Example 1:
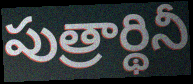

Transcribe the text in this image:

పుత్రార్థినీ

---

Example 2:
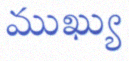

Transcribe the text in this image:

ముఖ్యు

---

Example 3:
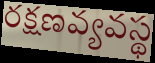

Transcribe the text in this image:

రక్షణవ్యవస్థ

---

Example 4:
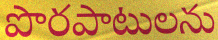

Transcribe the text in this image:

పొరపాటులను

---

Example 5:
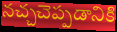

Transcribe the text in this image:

నచ్చచెప్పడానికి